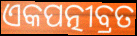
ଏକପତ୍ନୀବ୍ରତ